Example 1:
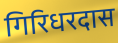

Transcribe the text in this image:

गिरिधरदास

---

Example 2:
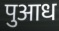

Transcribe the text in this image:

पुआध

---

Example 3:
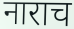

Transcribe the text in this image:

नाराच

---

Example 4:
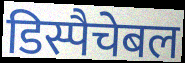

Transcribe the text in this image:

डिस्पैचेबल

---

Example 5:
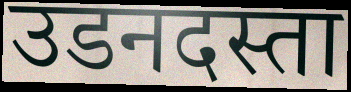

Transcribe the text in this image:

उडनदस्ता